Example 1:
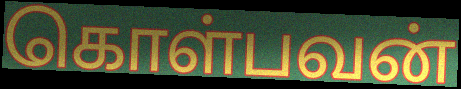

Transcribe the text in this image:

கொள்பவன்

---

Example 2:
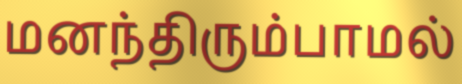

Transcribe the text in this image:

மனந்திரும்பாமல்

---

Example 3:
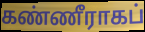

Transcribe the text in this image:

கண்ணீராகப்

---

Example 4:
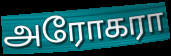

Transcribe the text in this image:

அரோகரா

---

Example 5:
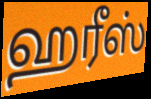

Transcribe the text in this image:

ஹரீஸ்